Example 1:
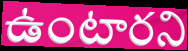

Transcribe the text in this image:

ఉంటారని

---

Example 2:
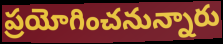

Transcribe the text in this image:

ప్రయోగించనున్నారు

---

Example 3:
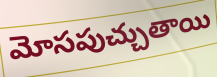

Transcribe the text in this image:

మోసపుచ్చుతాయి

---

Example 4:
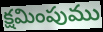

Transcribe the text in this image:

క్షమింపుము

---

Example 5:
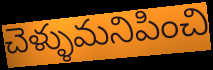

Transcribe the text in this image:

చెళ్ళుమనిపించి